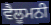
ਵੈਲੂਮਨੀ